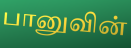
பானுவின்